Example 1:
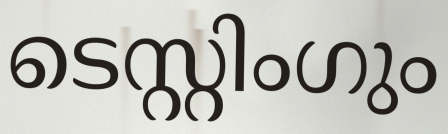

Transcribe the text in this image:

ടെസ്റ്റിംഗും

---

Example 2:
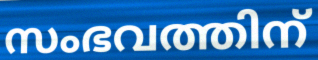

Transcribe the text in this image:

സംഭവത്തിന്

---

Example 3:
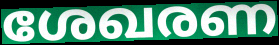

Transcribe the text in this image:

ശേഖരണ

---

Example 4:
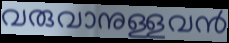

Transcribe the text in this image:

വരുവാനുള്ളവൻ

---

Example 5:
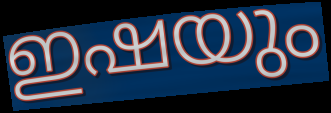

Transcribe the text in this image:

ഇഷയും